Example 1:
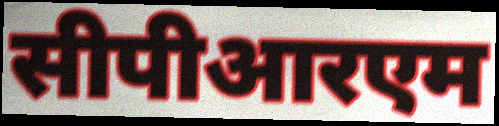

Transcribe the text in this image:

सीपीआरएम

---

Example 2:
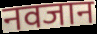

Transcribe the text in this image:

नवजान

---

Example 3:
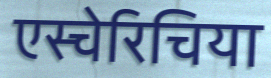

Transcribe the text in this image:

एस्चेरिचिया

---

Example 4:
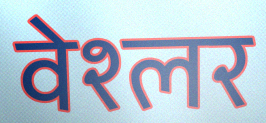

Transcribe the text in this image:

वेश्लर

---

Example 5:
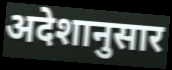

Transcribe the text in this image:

अदेशानुसार